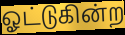
ஓட்டுகின்ற